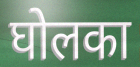
घोलका